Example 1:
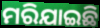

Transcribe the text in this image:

ମରିଯାଇଛି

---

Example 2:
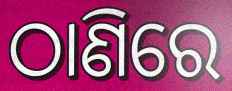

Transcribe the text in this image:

ଠାଣିରେ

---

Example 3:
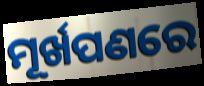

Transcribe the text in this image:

ମୂର୍ଖପଣରେ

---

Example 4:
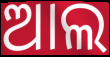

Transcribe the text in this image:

ଆଲ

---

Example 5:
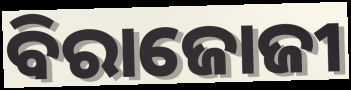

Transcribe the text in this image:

ବିରାଜୋଜୀ